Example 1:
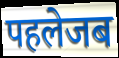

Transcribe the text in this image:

पहलेजब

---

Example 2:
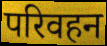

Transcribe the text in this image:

परिवहन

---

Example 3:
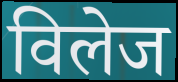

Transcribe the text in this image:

विलेज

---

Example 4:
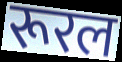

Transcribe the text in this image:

रूरल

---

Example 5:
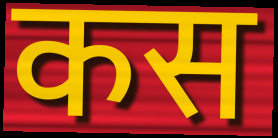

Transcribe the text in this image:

कस